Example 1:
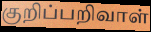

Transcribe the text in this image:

குறிப்பறிவாள்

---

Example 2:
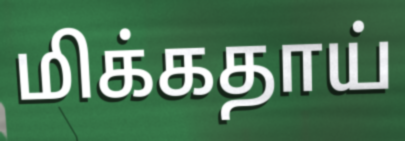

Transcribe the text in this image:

மிக்கதாய்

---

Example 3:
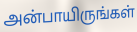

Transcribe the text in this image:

அன்பாயிருங்கள்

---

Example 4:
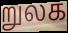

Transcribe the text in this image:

றுலக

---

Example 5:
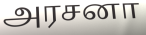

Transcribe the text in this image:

அரசனா